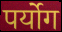
पर्योग